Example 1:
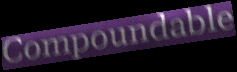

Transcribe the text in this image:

Compoundable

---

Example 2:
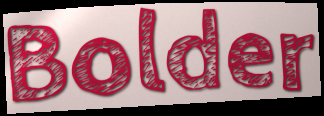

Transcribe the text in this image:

Bolder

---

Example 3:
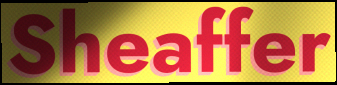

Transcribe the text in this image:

Sheaffer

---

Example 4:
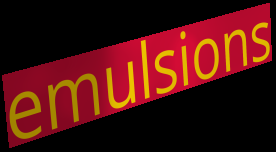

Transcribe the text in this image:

emulsions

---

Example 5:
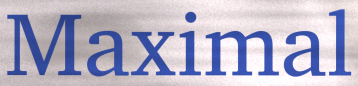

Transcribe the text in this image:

Maximal